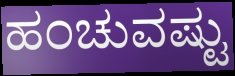
ಹಂಚುವಷ್ಟು